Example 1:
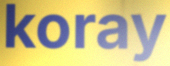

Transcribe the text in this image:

koray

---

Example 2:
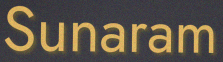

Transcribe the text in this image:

Sunaram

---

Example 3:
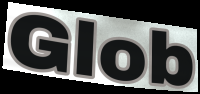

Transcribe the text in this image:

Glob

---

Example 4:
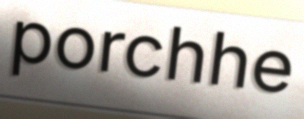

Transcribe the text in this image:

porchhe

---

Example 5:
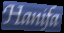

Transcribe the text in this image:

Hanifa